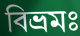
বিভ্রমঃ